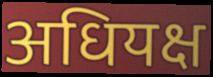
अधियक्ष